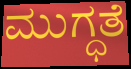
ಮುಗ್ಧತೆ